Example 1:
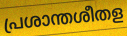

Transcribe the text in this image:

പ്രശാന്തശീതള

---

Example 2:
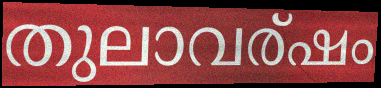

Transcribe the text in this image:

തുലാവര്ഷം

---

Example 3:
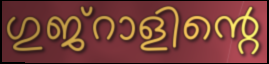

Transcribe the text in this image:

ഗുജ്റാളിന്റെ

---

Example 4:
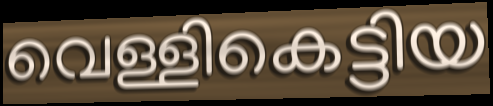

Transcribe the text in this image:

വെള്ളികെട്ടിയ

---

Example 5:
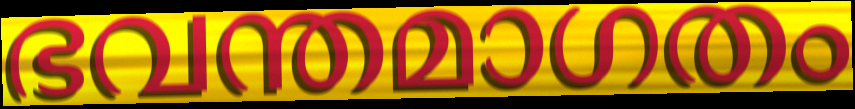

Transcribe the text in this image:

ഭവന്തമാഗതം